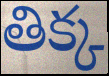
తిక్క